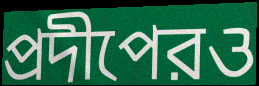
প্রদীপেরও